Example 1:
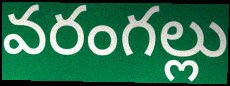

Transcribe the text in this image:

వరంగల్లు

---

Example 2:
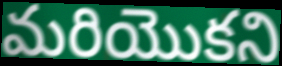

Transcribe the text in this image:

మరియొకని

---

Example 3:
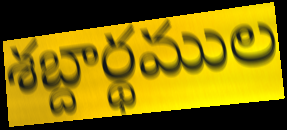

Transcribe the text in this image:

శబ్దార్థముల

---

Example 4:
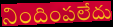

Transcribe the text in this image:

నిందింపలేదు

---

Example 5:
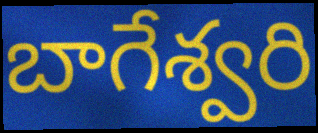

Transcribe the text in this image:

బాగేశ్వరి